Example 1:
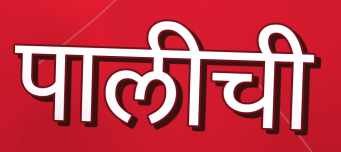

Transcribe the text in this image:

पालीची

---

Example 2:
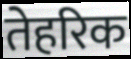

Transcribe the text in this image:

तेहरिक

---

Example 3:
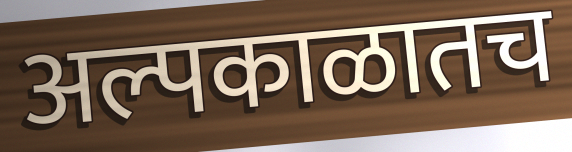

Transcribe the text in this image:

अल्पकाळातच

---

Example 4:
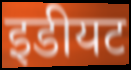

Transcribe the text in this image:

इडीयट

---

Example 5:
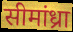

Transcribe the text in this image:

सीमांध्रा